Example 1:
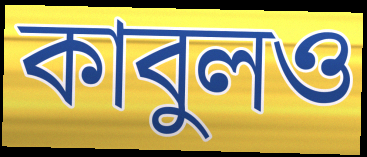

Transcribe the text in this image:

কাবুলও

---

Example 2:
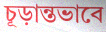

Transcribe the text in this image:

চূড়ান্তভাবে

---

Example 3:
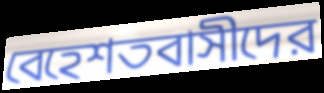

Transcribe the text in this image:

বেহেশতবাসীদের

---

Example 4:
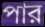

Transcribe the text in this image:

পার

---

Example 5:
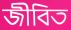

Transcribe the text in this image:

জীবিত